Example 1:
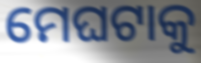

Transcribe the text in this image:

ମେଘଟାକୁ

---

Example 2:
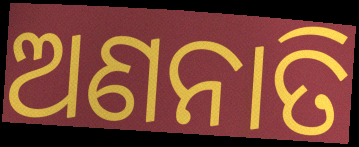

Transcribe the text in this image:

ଅଣନାତି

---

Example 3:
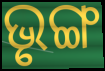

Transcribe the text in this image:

ଭୃଙ୍ଗ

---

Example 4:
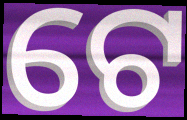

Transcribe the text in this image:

ଟେ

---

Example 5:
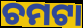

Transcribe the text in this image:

ଚମଟା